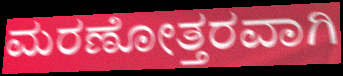
ಮರಣೋತ್ತರವಾಗಿ